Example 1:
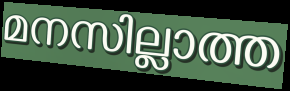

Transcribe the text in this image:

മനസില്ലാത്ത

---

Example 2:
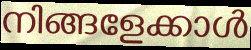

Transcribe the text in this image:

നിങ്ങളേക്കാൾ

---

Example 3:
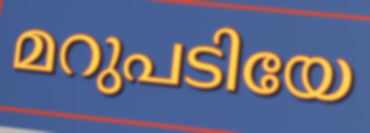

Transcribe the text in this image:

മറുപടിയേ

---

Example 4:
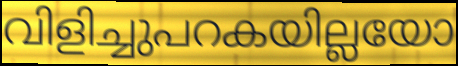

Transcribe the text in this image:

വിളിച്ചുപറകയില്ലയോ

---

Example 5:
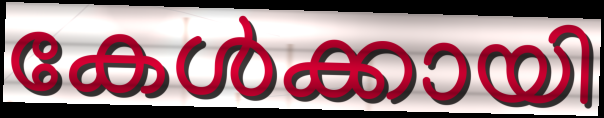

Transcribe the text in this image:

കേൾക്കായി